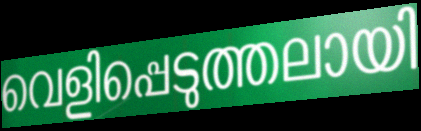
വെളിപ്പെടുത്തലായി